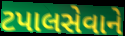
ટપાલસેવાને